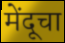
मेंदूचा